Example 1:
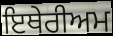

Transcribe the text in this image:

ਇਥੇਰੀਅਮ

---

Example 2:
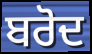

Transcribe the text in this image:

ਬਰੋਦ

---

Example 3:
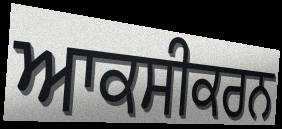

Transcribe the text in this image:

ਆਕਸੀਕਰਨ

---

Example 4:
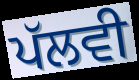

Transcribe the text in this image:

ਪੱਲਵੀ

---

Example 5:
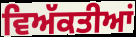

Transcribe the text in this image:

ਵਿਅੱਕਤੀਆਂ